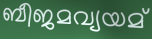
ബീജമവ്യയമ്